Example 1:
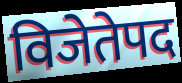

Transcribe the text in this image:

विजेतेपद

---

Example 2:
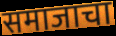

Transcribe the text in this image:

समाजाचा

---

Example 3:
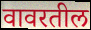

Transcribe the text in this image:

वावरतील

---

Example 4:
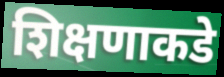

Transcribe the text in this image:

शिक्षणाकडे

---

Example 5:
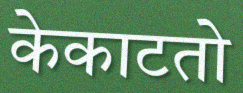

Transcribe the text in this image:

केकाटतो